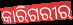
କାରିଗରୀର